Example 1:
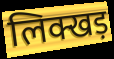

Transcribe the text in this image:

लिक्खड़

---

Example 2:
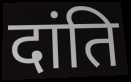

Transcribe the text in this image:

दांति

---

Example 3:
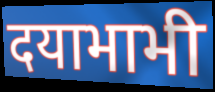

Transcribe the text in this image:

दयाभाभी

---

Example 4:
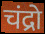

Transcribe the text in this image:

चंद्रो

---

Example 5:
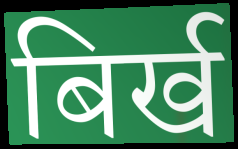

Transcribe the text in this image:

बिर्ख